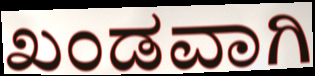
ಖಂಡವಾಗಿ